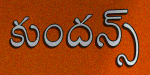
కుందన్స్